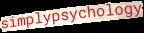
simplypsychology